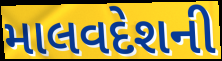
માલવદેશની